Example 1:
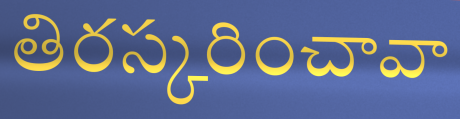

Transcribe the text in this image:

తిరస్కరించావా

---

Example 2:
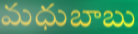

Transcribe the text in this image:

మధుబాబు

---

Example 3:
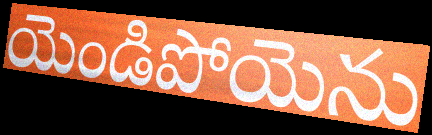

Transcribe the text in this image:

యెండిపోయెను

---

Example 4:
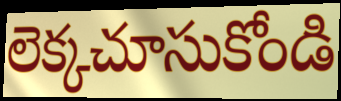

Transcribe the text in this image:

లెక్కచూసుకోండి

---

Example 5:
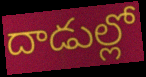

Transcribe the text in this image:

దాడుల్లో